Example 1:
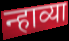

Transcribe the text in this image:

न्हाव्या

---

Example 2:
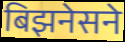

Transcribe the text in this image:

बिझनेसने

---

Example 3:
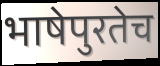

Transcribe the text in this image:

भाषेपुरतेच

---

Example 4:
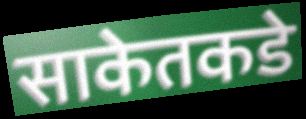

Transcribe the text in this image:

साकेतकडे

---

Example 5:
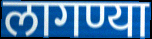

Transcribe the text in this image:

लागण्या